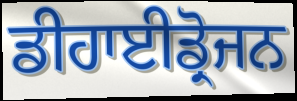
ਡੀਹਾਈਡ੍ਰੋਜਨ